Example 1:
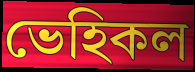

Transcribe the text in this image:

ভেহিকল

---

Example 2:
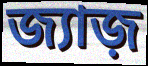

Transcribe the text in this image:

জ্যাজ়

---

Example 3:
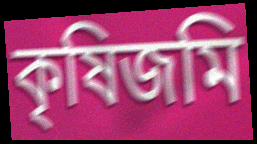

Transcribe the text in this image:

কৃষিজমি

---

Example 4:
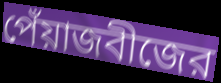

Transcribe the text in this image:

পেঁয়াজবীজের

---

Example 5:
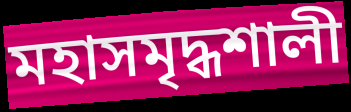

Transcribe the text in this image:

মহাসমৃদ্ধশালী